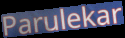
Parulekar